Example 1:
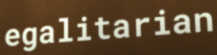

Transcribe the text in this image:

egalitarian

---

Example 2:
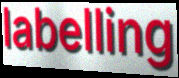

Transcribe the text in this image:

labelling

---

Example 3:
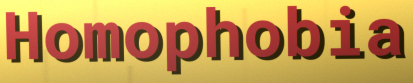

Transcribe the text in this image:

Homophobia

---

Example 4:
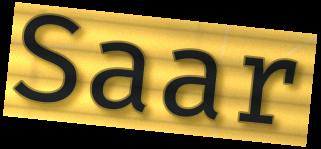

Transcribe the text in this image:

Saar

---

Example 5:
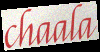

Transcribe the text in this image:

chaala